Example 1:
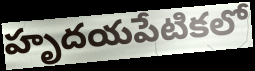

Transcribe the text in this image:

హృదయపేటికలో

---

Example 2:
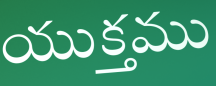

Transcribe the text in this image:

యుక్తము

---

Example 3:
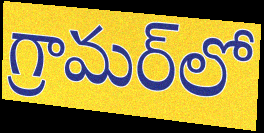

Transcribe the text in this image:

గ్రామర్‌లో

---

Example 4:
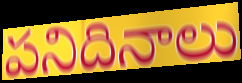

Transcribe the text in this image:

పనిదినాలు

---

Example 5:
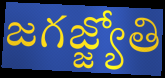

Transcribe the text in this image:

జగజ్జ్యోతి